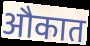
औकात